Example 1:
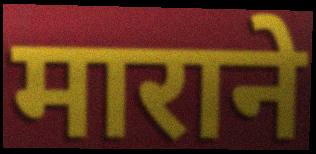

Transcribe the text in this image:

माराने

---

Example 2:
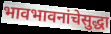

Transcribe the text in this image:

भावभावनांचेसुद्धा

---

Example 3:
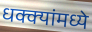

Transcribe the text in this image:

धक्क्यांमध्ये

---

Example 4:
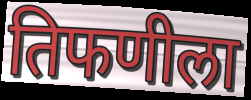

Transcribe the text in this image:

तिफणीला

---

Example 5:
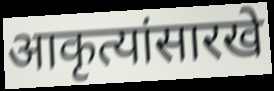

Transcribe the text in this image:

आकृत्यांसारखे